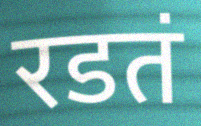
रडतं